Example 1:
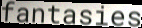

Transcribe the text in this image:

fantasies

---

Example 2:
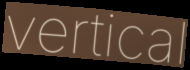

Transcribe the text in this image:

vertical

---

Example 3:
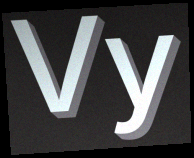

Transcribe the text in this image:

Vy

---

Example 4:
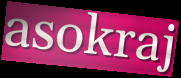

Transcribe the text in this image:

asokraj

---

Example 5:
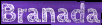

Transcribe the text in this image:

Branada